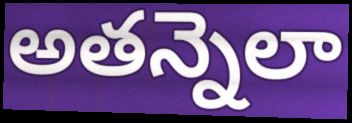
అతన్నెలా